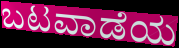
ಬಟವಾಡೆಯ